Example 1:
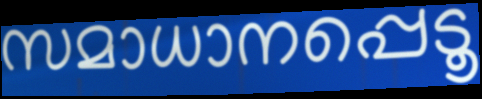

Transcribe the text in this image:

സമാധാനപ്പെടൂ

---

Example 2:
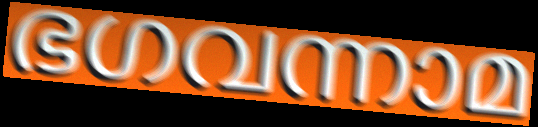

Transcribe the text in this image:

ഭഗവന്നാമ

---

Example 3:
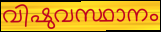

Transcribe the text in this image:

വിഷുവസ്ഥാനം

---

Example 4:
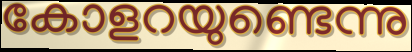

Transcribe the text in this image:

കോളറയുണ്ടെന്നു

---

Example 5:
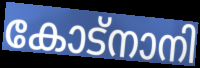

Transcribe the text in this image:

കോട്നാനി